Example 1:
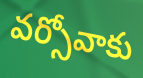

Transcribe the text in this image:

వర్సోవాకు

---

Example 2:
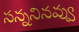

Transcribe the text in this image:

సన్ననినవ్వు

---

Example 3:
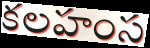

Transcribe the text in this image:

కలహంస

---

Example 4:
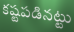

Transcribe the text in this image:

కష్టపడినట్టు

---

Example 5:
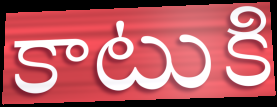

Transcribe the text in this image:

కాటుకి